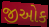
જીઓક